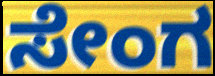
ಸೇಂಗ